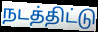
நடத்திட்டு